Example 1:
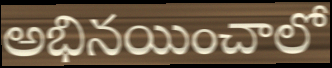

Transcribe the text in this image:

అభినయించాలో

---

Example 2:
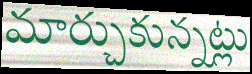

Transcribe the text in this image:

మార్చుకున్నట్లు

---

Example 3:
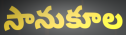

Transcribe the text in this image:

సానుకూల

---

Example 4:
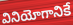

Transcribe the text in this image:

వినియోగానికే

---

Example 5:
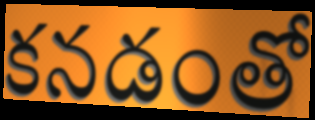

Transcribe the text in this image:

కనడంతో